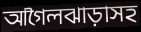
আগৈলঝাড়াসহ